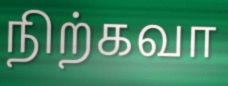
நிற்கவா